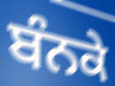
ਬੰਨਕੇ